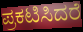
ಪ್ರಕಟಿಸಿದರೆ